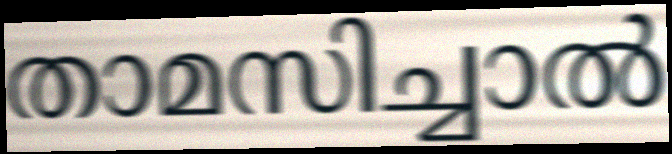
താമസിച്ചാൽ